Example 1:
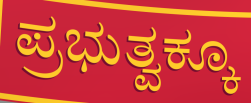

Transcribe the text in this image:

ಪ್ರಭುತ್ವಕ್ಕೂ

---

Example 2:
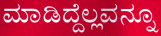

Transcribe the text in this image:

ಮಾಡಿದ್ದೆಲ್ಲವನ್ನೂ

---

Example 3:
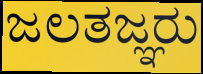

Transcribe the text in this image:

ಜಲತಜ್ಞರು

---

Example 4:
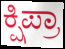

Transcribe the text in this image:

ಕ್ಷಿಪ್ರಾ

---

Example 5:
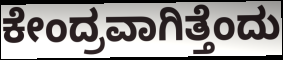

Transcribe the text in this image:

ಕೇಂದ್ರವಾಗಿತ್ತೆಂದು